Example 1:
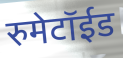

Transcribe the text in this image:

रुमेटॉईड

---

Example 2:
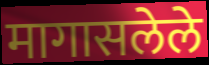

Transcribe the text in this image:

मागासलेले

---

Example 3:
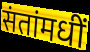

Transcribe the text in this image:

संतांमधीं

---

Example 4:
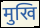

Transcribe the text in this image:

मुखि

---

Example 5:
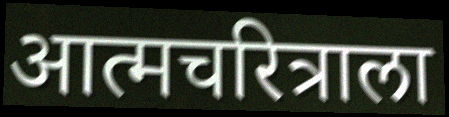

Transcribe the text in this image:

आत्मचरित्राला